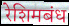
रेशिमबंध